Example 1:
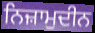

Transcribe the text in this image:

ਨਿਜ਼ਾਮੁਦੀਨ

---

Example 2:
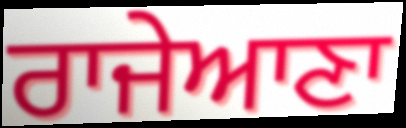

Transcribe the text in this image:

ਰਾਜੇਆਣਾ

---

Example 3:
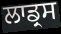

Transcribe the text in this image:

ਲਾਡ੍ਰਸ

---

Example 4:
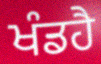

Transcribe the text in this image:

ਖੰਡਹੈ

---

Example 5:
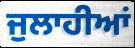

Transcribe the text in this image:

ਜੁਲਾਹੀਆਂ